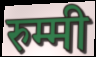
रुम्मी